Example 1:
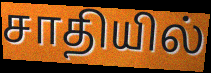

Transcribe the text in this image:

சாதியில்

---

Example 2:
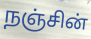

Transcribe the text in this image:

நஞ்சின்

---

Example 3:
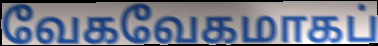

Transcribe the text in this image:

வேகவேகமாகப்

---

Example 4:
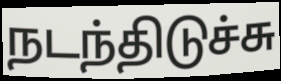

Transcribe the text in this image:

நடந்திடுச்சு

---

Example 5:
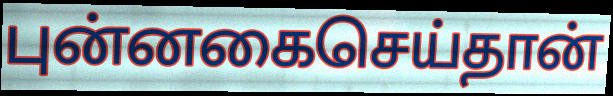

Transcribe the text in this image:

புன்னகைசெய்தான்